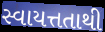
સ્વાયત્તતાથી